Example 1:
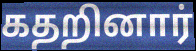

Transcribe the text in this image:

கதறினார்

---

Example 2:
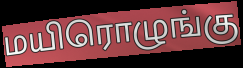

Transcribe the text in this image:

மயிரொழுங்கு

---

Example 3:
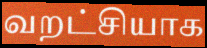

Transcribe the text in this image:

வறட்சியாக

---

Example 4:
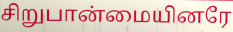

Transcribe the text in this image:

சிறுபான்மையினரே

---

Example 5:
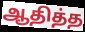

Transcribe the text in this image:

ஆதித்த